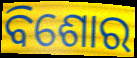
ବିଶୋର